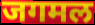
जगमल